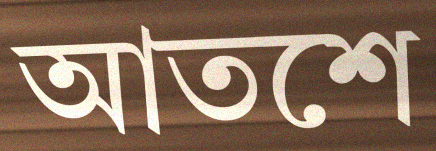
আতশে